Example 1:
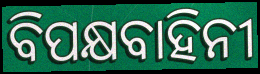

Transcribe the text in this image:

ବିପକ୍ଷବାହିନୀ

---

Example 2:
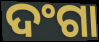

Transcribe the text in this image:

ଦଂଗା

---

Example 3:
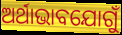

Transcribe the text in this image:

ଅର୍ଥାଭାବଯୋଗୁଁ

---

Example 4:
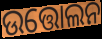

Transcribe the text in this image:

ଉତ୍ତୋଲନ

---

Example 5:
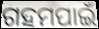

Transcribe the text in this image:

ଗହମପାଇଁ